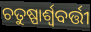
ଚତୁଷ୍ପାର୍ଶ୍ୱବର୍ତ୍ତୀ